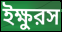
ইক্ষুরস